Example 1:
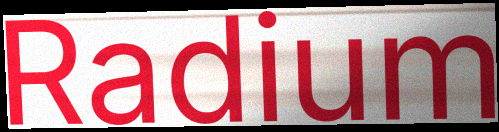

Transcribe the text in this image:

Radium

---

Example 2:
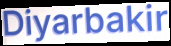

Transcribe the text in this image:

Diyarbakir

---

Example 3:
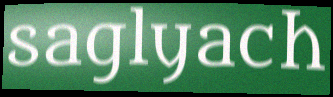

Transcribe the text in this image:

saglyach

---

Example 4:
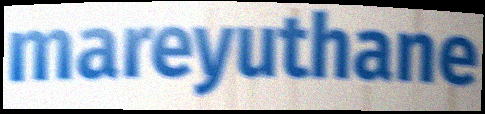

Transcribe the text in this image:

mareyuthane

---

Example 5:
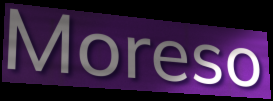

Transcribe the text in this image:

Moreso